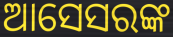
ଆସେସରଙ୍କ